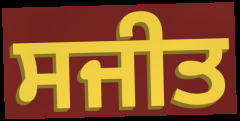
ਸਜੀਤ